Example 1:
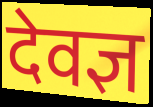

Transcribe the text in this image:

देवज्ञ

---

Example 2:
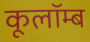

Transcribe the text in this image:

कूलॉम्ब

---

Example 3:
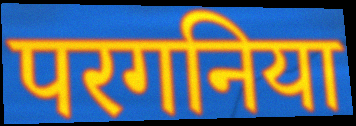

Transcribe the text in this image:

परगनिया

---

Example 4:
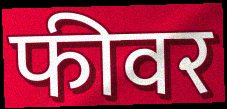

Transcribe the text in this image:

फीवर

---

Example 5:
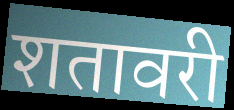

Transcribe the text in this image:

शतावरी